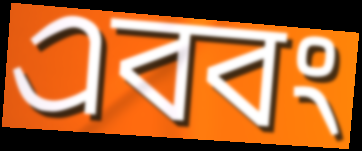
এববং